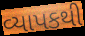
વ્યાપકથી